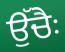
ਉੱਚੈਃ